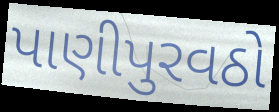
પાણીપુરવઠો